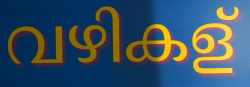
വഴികള്